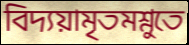
বিদ্যয়ামৃতমশ্নুতে